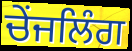
ਚੇਂਜਲਿੰਗ